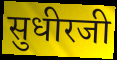
सुधीरजी